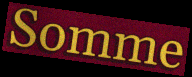
Somme